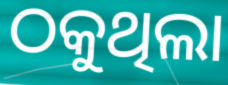
ଠକୁଥିଲା